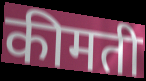
कीमती